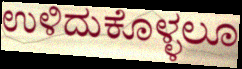
ಉಳಿದುಕೊಳ್ಳಲೂ